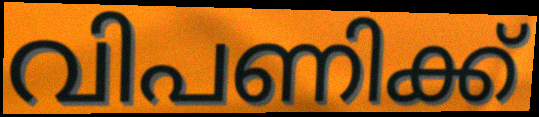
വിപണിക്ക്